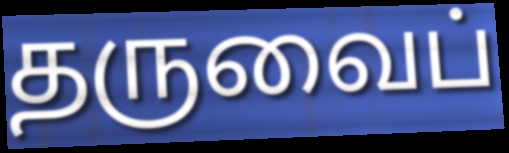
தருவைப்